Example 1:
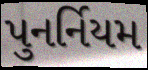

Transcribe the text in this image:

પુનર્નિયમ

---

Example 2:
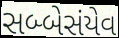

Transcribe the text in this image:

સબ્બેસંયેવ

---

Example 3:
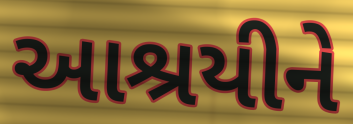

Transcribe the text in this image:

આશ્રયીને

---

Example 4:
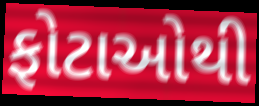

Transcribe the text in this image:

ફોટાઓથી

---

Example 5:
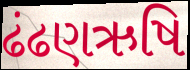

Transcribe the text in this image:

ઢંઢણઋષિ